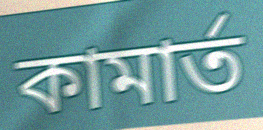
কামাৰ্ত